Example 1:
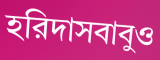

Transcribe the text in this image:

হরিদাসবাবুও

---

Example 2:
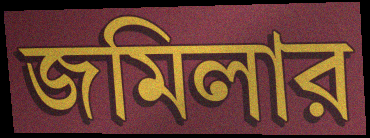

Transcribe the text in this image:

জমিলার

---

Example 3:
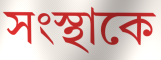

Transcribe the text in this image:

সংস্থাকে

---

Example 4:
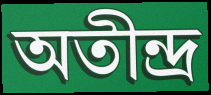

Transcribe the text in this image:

অতীন্দ্র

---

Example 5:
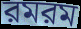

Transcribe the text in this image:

রমরম